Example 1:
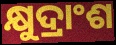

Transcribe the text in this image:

କ୍ଷୁଦ୍ରାଂଶ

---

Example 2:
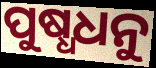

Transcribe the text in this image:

ପୁଷ୍ଧଧନୁ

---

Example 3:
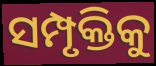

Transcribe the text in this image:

ସମ୍ପୃକ୍ତିକୁ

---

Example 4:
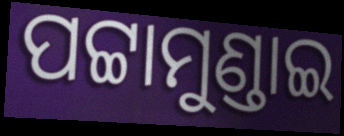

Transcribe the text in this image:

ପଟ୍ଟାମୁଣ୍ଡାଇ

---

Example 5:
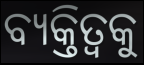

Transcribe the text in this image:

ବ୍ୟକ୍ତିତ୍ୱକୁ